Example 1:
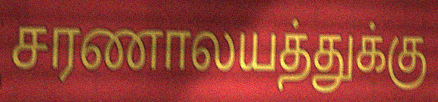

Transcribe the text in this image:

சரணாலயத்துக்கு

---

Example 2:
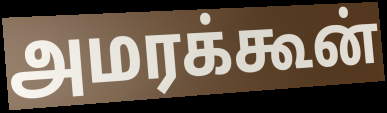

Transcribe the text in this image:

அமரக்கூன்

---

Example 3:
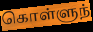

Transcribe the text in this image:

கொள்ளுந்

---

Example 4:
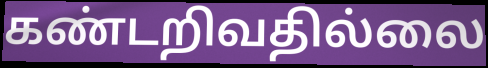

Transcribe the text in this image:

கண்டறிவதில்லை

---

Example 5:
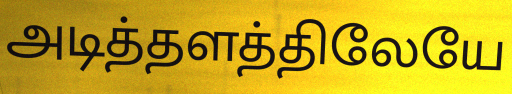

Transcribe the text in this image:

அடித்தளத்திலேயே